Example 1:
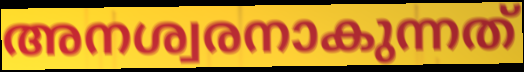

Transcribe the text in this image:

അനശ്വരനാകുന്നത്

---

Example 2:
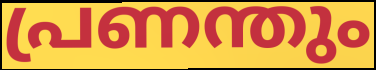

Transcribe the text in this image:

പ്രണന്തും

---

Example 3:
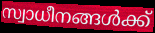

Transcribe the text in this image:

സ്വാധീനങ്ങൾക്ക്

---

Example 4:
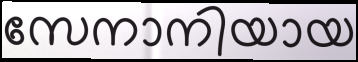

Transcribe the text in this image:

സേനാനിയായ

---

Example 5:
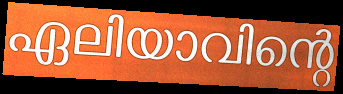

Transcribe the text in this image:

ഏലിയാവിന്റെ